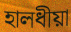
হালধীয়া